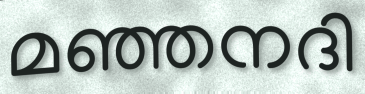
മഞ്ഞനദി